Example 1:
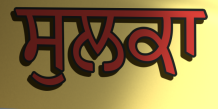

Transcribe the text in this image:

ਸੁਲਕਾ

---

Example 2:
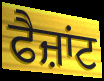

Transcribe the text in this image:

ਫੈਜ਼ਾਂਟ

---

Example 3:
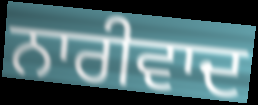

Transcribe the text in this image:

ਨਾਰੀਵਾਦ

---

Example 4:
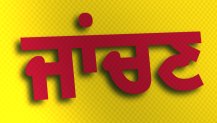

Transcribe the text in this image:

ਜਾਂਚਣ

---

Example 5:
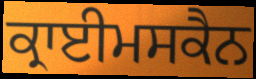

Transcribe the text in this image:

ਕ੍ਰਾਈਮਸਕੈਨ